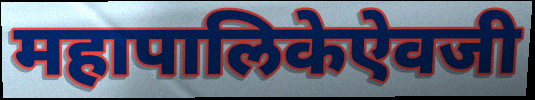
महापालिकेऐवजी